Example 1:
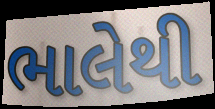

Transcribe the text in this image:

ભાલેથી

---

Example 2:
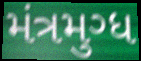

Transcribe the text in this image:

મંત્રમુગ્ધ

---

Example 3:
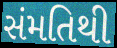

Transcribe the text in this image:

સંમતિથી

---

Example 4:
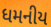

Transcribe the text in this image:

ધમનીય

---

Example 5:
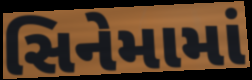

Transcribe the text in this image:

સિનેમામાં